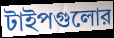
টাইপগুলোর